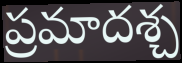
ప్రమాదశ్చ